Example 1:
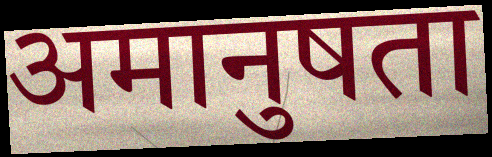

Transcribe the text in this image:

अमानुषता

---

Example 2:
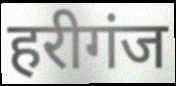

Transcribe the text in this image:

हरीगंज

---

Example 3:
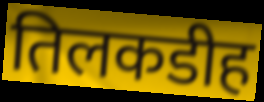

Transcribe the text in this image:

तिलकडीह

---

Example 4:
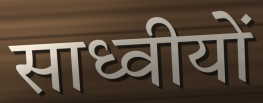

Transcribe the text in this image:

साध्वीयों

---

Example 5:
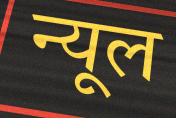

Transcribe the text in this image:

न्यूल